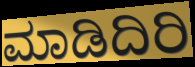
ಮಾಡಿದಿರಿ